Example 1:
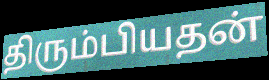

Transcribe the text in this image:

திரும்பியதன்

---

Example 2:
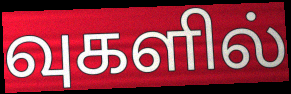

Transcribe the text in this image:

வுகளில்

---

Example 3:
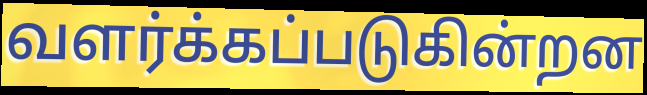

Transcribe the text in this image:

வளர்க்கப்படுகின்றன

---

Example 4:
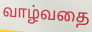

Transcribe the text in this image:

வாழ்வதை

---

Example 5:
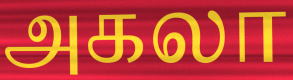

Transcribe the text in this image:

அகலா